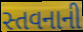
સ્તવનાની